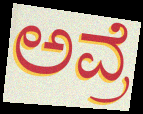
ಅವ್ರೆ